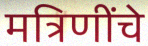
मत्रिणींचे